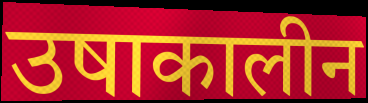
उषाकालीन